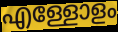
എള്ളോളം